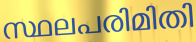
സ്ഥലപരിമിതി